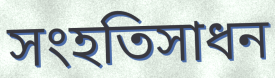
সংহতিসাধন